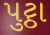
પુટ્ઠા